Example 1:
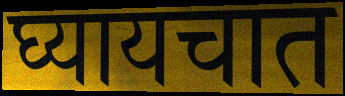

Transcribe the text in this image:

घ्यायचात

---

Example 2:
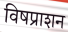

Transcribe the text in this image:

विषप्राशन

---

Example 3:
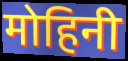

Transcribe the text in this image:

मोहिनी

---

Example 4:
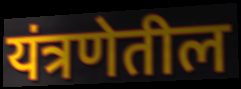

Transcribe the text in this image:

यंत्रणेतील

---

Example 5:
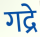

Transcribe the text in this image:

गद्रे